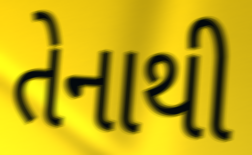
તેનાથી